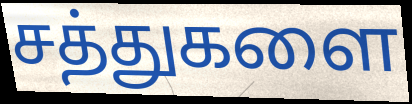
சத்துகளை